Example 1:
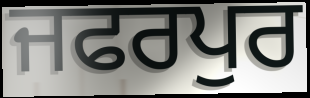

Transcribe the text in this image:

ਜਫਰਪੁਰ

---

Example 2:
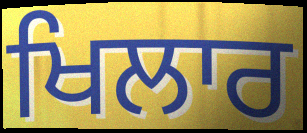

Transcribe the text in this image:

ਖਿਲਾਰ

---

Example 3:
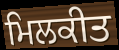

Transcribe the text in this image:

ਮਿਲਕੀਤ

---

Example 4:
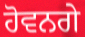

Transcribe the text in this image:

ਹੋਵਨਗੇ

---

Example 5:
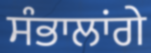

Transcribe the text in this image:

ਸੰਭਾਲਾਂਗੇ